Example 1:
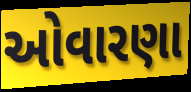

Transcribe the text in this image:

ઓવારણા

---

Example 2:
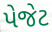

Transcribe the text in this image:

પેજેટ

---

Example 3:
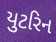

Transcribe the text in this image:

યુટરિન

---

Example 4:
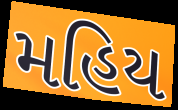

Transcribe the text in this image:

મહિય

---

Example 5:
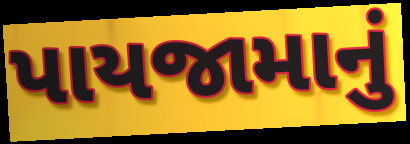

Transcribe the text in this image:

પાયજામાનું